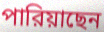
পারিয়াছেন